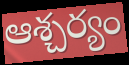
ఆశ్చర్యం